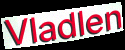
Vladlen